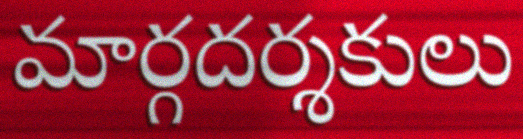
మార్గదర్శకులు